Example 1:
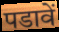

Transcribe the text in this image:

पडावें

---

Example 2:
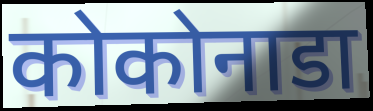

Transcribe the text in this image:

कोकोनाडा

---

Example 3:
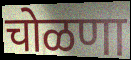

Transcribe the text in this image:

चोळणा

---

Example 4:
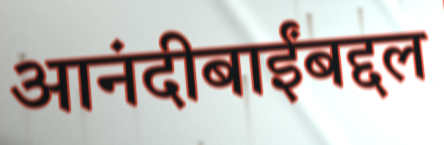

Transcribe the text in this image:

आनंदीबाईंबद्दल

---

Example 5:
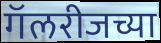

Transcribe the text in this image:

गॅलरीजच्या